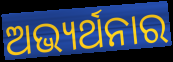
ଅଭ୍ୟର୍ଥନାର